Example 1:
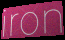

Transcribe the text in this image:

iron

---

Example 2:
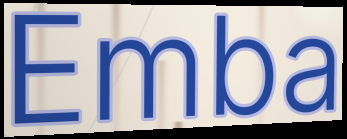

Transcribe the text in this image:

Emba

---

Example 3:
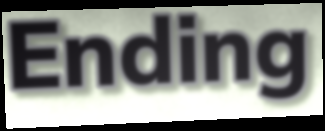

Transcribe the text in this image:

Ending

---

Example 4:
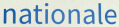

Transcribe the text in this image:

nationale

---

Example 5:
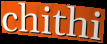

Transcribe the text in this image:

chithi